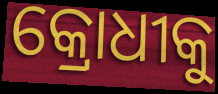
କ୍ରୋଧୀକୁ